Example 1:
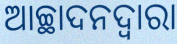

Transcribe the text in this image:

ଆଚ୍ଛାଦନଦ୍ୱାରା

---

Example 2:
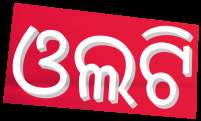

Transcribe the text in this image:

ଓଲଟି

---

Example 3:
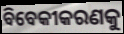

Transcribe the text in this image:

ବିବେକୀକରଣକୁ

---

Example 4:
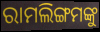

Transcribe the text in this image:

ରାମଲିଙ୍ଗମଙ୍କୁ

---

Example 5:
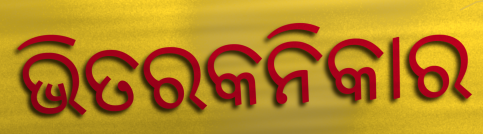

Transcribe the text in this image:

ଭିତରକନିକାର